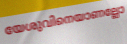
യേശുവിനെയാണല്ലോ